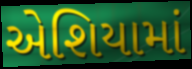
એશિયામાં